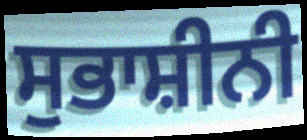
ਸੁਭਾਸ਼ੀਨੀ